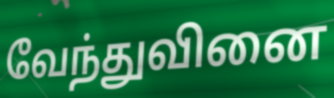
வேந்துவினை